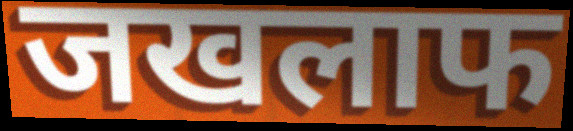
जखलाफ